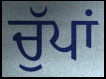
ਚੁੱਪਾਂ